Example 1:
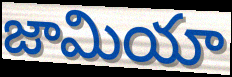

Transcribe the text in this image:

జామియా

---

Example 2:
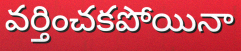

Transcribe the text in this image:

వర్తించకపోయినా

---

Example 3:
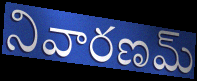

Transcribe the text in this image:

నివారణమ్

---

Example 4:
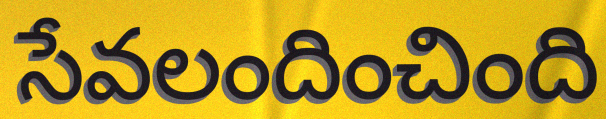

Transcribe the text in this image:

సేవలందించింది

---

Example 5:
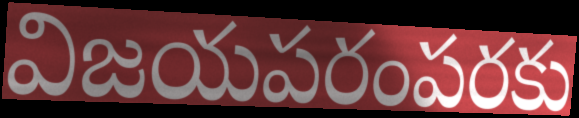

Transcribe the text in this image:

విజయపరంపరకు